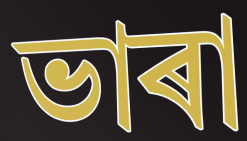
ভাৰা